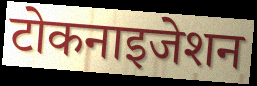
टोकनाइजेशन